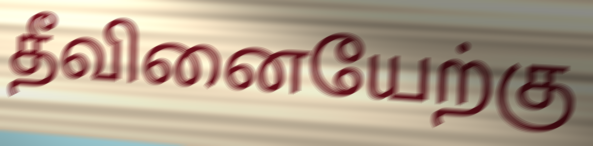
தீவினையேற்கு